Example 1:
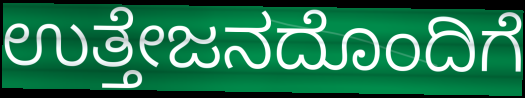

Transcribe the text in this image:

ಉತ್ತೇಜನದೊಂದಿಗೆ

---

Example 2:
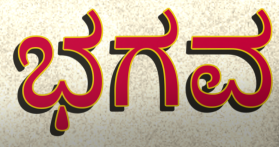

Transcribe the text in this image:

ಭಗವ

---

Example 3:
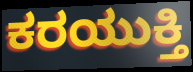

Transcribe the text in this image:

ಕರಯುಕ್ತಿ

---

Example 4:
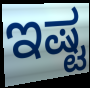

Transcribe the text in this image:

ಇಷ್ಟ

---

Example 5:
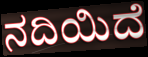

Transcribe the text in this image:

ನದಿಯಿದೆ